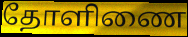
தோளிணை